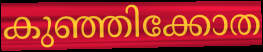
കുഞ്ഞിക്കോത